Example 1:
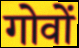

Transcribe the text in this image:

गोवों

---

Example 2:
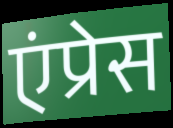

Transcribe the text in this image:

एंप्रेस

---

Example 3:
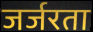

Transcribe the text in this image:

जर्जरता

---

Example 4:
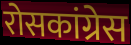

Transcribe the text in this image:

रोसकांग्रेस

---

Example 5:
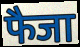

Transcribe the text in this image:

फैजा